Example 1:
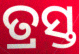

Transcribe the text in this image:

ତ୍ରସ୍ତ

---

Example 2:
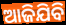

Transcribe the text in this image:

ଆଜିଯିବି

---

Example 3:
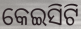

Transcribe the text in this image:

କେଇସିଟି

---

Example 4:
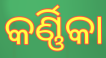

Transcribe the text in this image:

କର୍ଣ୍ଣିକା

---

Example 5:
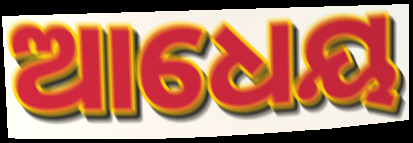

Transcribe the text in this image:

ଆଧେୟ